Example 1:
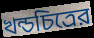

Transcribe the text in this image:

খন্ডচিত্রের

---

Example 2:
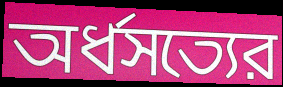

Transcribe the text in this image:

অর্ধসত্যের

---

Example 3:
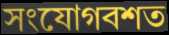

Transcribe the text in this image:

সংযোগবশত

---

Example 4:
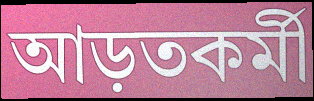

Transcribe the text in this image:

আড়তকর্মী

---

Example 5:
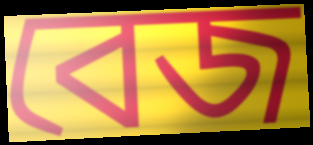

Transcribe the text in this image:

বেজ